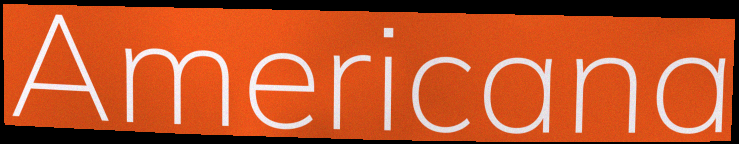
Americana